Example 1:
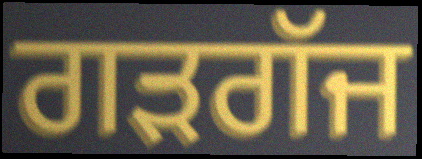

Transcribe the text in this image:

ਗਡ਼ਗੱਜ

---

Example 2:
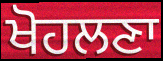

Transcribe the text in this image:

ਖੋਹਲਣਾ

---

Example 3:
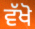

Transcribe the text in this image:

ਵੱਖੋ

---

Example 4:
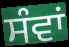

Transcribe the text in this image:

ਸੰਵਾਂ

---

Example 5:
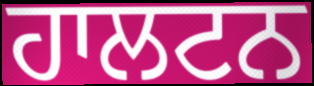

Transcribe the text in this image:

ਹਾਲਟਨ